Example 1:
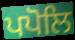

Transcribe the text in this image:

ਪਪੋਲਿ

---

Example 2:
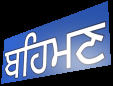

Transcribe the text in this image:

ਬਹਿਮਣ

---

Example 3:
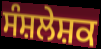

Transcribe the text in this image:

ਸੰਸ਼ਲੇਸ਼ਕ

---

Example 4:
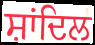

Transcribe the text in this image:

ਸ਼ਾਂਦਿਲ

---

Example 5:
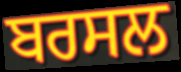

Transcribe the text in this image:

ਬਰਸਲ